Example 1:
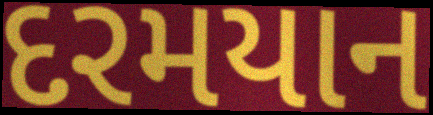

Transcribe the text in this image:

દરમયાન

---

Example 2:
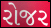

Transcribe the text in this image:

રોજર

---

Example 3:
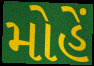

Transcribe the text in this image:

મોહેં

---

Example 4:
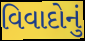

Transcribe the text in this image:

વિવાદોનું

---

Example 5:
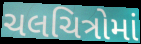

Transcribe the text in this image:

ચલચિત્રોમાં